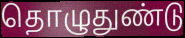
தொழுதுண்டு